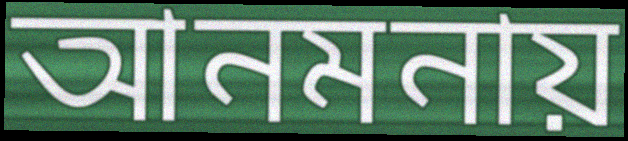
আনমনায়